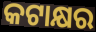
କଟାକ୍ଷର